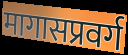
मागासप्रवर्ग